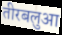
तीरबलुआ